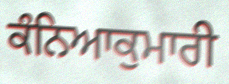
ਕੰਨਿਆਕੁਮਾਰੀ